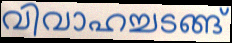
വിവാഹച്ചടങ്ങ്